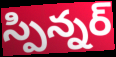
స్పిన్నర్